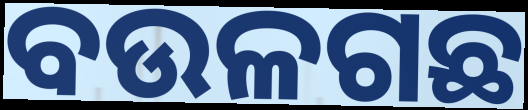
ବଉଳଗଛ